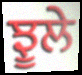
ਝੂਲੇ